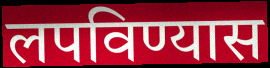
लपविण्यास